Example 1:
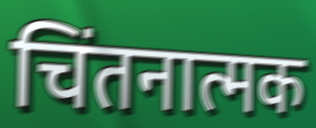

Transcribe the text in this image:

चिंतनात्मक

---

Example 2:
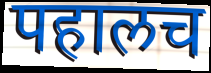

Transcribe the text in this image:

पहालच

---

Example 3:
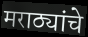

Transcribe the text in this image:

मराठ्यांचे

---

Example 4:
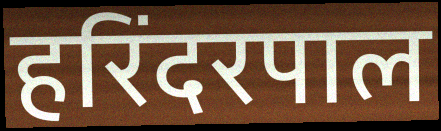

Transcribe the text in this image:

हरिंदरपाल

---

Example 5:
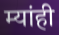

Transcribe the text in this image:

म्यांही